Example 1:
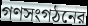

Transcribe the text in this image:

গণসংগঠনের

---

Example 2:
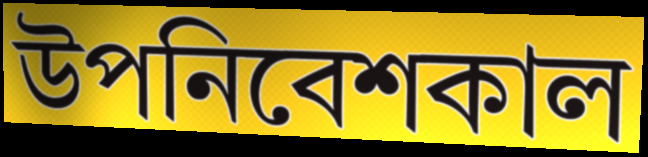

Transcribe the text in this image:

উপনিবেশকাল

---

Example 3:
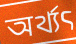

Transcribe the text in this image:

অর্থ্যৎ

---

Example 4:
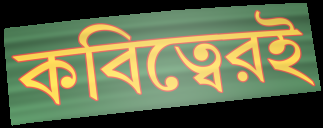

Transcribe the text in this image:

কবিত্বেরই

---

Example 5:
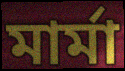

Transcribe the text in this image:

মার্মা